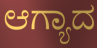
ಆಗ್ಯಾದ